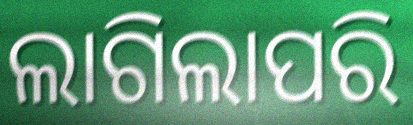
ଲାଗିଲାପରି